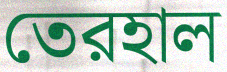
তেরহাল